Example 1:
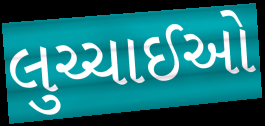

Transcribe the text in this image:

લુચ્ચાઈઓ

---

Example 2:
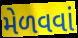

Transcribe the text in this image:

મેળવવાં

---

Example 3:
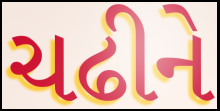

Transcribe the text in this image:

ચઢીને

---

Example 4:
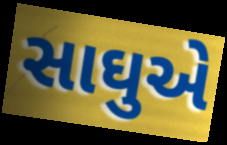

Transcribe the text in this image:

સાઘુએ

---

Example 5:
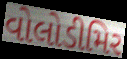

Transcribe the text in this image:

વોલોડીમિર